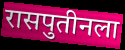
रासपुतीनला